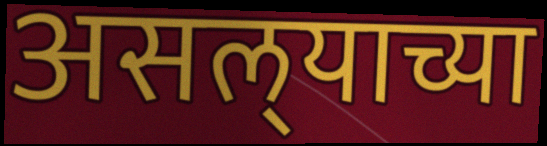
असल्याच्या